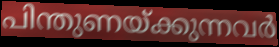
പിന്തുണയ്ക്കുന്നവർ